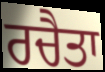
ਰਚੈਤਾ